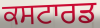
ਕਸਟਾਰਡ